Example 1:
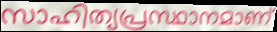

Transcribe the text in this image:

സാഹിത്യപ്രസ്ഥാനമാണ്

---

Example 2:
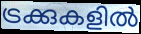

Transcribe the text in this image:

ട്രക്കുകളിൽ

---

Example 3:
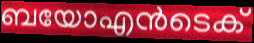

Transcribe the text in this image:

ബയോഎൻടെക്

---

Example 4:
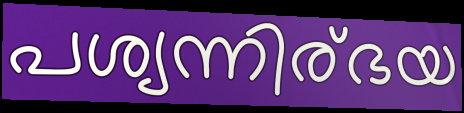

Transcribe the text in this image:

പശ്യന്നിര്ഭയ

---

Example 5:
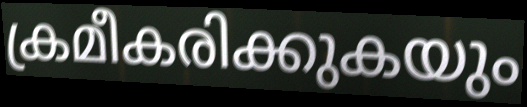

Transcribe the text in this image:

ക്രമീകരിക്കുകയും